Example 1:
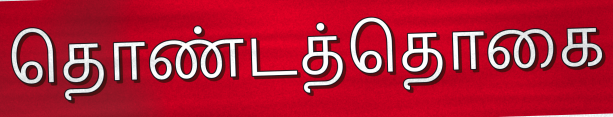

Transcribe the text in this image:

தொண்டத்தொகை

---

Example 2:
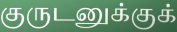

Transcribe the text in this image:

குருடனுக்குக்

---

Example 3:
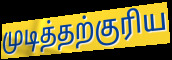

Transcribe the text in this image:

முடித்தற்குரிய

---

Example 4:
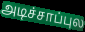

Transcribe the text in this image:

அடிச்சாப்புல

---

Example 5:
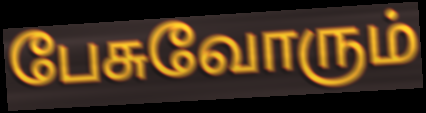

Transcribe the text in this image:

பேசுவோரும்